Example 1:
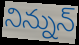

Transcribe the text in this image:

నిన్నున్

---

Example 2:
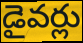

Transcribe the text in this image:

డైవర్లు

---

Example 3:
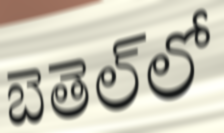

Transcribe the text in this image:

బెతెల్‌లో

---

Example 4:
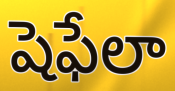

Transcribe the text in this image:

షెఫేలా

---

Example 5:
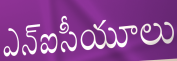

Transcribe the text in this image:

ఎన్ఐసీయూలు